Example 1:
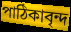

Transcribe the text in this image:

পাঠিকাবৃন্দ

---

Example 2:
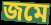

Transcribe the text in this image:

জমে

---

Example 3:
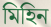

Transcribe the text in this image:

মিহিন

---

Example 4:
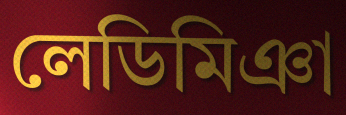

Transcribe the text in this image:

লেডিমিঞা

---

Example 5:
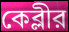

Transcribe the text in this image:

কেব্লীর